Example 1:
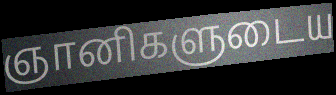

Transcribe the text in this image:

ஞானிகளுடைய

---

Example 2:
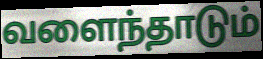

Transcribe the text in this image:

வளைந்தாடும்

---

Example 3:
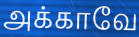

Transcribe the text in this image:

அக்காவே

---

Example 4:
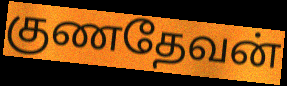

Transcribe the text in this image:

குணதேவன்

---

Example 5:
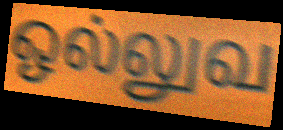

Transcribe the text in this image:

ஒல்லுவ